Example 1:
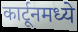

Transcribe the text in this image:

कार्टूनमध्ये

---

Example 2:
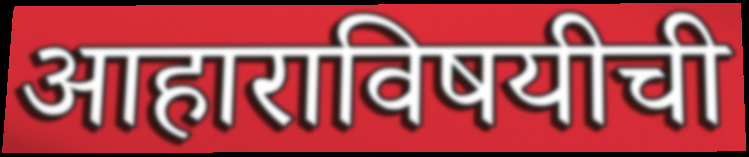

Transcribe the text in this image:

आहाराविषयीची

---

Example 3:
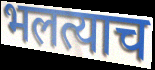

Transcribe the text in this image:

भलत्याच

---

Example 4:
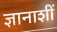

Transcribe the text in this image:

ज्ञानाशीं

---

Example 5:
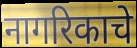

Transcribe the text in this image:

नागरिकाचे